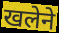
खलेने